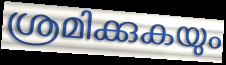
ശ്രമിക്കുകയും